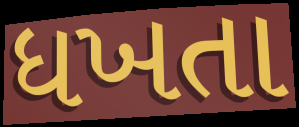
ધખતા